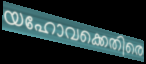
യഹോവക്കെതിരെ